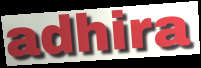
adhira